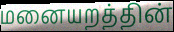
மனையறத்தின்